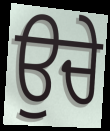
ਉਚੇ